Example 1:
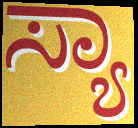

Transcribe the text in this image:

ಸ್ಯಾ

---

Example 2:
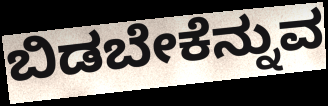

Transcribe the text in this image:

ಬಿಡಬೇಕೆನ್ನುವ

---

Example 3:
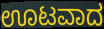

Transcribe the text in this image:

ಊಟವಾದ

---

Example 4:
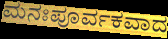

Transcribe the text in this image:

ಮನಃಪೂರ್ವಕವಾದ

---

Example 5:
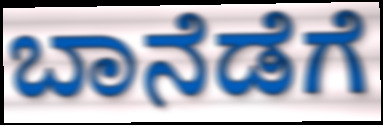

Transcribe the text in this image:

ಬಾನೆಡೆಗೆ